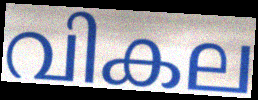
വികല